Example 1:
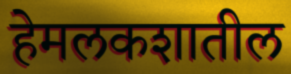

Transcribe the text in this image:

हेमलकशातील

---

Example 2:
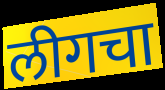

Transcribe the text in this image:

लीगचा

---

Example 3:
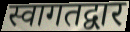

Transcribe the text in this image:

स्वागतद्वार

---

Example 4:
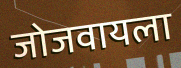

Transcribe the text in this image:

जोजवायला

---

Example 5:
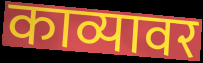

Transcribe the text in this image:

काव्यावर